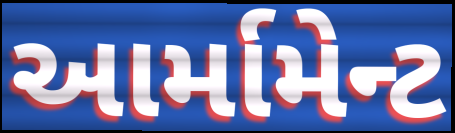
આર્મામેન્ટ